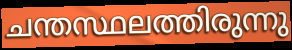
ചന്തസ്ഥലത്തിരുന്നു